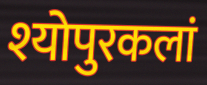
श्योपुरकलां